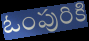
ఓంపురికి